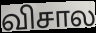
விசால